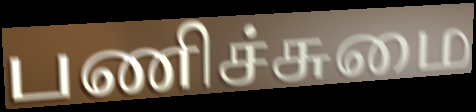
பணிச்சுமை